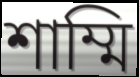
শাম্মি